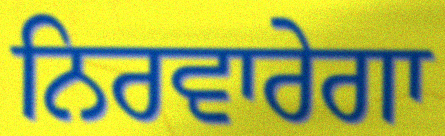
ਨਿਰਵਾਰੇਗਾ